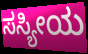
ಸಸ್ಯೀಯ